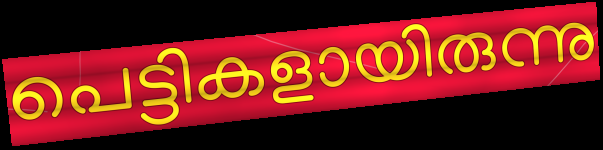
പെട്ടികളായിരുന്നു